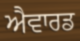
ਐਵਾਰਡ